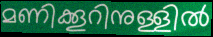
മണിക്കൂറിനുള്ളിൽ